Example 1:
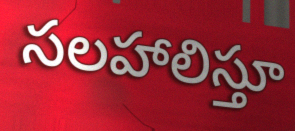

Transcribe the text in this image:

సలహాలిస్తూ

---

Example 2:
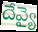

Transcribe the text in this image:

దేవ్యై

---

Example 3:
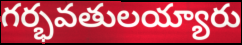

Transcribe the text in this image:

గర్భవతులయ్యారు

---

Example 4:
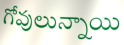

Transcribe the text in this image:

గోవులున్నాయి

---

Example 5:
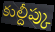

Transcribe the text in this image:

కుల్దీప్కు